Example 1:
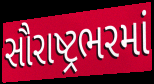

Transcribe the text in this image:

સૌરાષ્ટ્રભરમાં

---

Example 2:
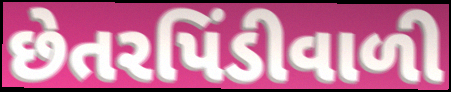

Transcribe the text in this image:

છેતરપિંડીવાળી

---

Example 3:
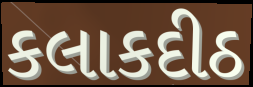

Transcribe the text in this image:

કલાકદીઠ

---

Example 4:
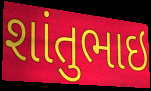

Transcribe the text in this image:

શાંતુભાઇ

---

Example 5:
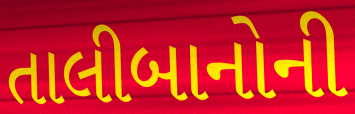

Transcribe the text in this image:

તાલીબાનોની